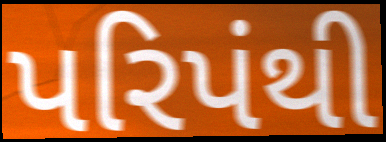
પરિપંથી